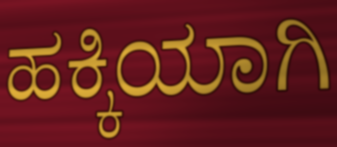
ಹಕ್ಕಿಯಾಗಿ